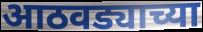
आठवड्याच्या